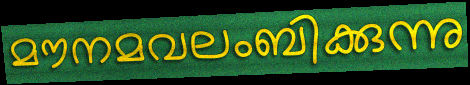
മൗനമവലംബിക്കുന്നു